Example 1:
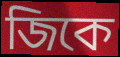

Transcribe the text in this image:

জিকে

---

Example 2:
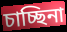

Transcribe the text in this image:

চাচ্ছিনা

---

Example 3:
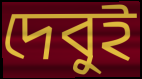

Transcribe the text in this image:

দেবুই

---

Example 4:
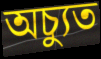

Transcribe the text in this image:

অচ্যুত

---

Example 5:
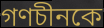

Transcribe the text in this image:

গণচীনকে